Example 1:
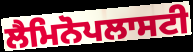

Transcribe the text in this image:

ਲੈਮਿਨੋਪਲਾਸਟੀ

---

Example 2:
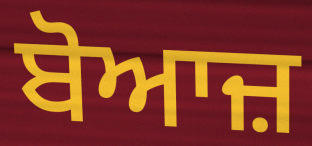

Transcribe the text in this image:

ਬੋਆਜ਼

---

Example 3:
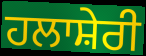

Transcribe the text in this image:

ਹਲਾਸ਼ੇਰੀ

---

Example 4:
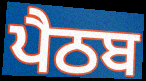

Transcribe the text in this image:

ਪੈਠਬ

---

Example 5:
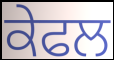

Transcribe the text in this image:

ਕੇਫਲ